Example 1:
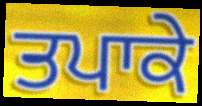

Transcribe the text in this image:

ਤਪਾਕੇ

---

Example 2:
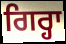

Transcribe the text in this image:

ਗਿਰ੍ਹਾ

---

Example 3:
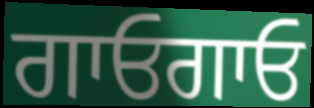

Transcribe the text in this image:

ਗਾਓਗਾਓ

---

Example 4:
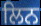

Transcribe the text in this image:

ਲਿਨ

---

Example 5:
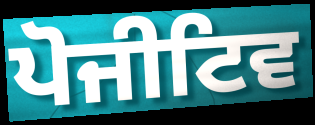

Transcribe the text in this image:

ਪੋਜੀਟਿਵ